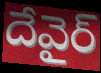
దేవైర్